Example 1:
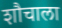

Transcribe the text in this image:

शौचाला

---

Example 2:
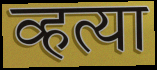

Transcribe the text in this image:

व्हत्या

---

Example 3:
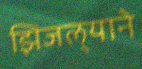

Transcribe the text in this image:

झिजल्याने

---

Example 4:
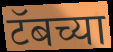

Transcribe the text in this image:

टॅबच्या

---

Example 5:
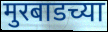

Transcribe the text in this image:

मुरबाडच्या